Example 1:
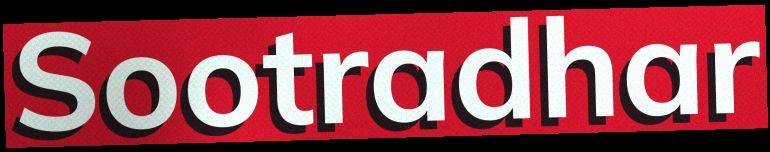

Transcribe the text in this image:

Sootradhar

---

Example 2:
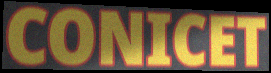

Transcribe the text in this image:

CONICET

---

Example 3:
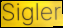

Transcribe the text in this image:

Sigler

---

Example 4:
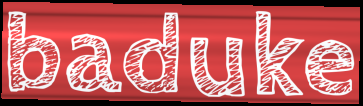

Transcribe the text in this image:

baduke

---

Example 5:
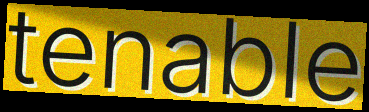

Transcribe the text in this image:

tenable